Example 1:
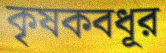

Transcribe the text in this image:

কৃষকবধূর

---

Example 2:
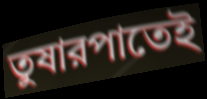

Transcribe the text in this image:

তুষারপাতেই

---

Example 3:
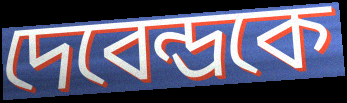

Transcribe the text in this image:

দেবেন্দ্রকে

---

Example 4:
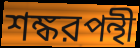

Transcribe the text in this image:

শঙ্করপন্থী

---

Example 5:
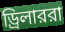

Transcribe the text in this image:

ড্রিলাররা